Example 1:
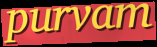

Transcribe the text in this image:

purvam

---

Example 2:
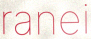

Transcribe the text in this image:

ranei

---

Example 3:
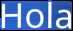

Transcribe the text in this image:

Hola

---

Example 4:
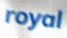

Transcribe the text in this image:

royal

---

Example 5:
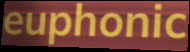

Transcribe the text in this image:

euphonic